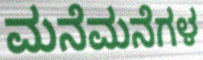
ಮನೆಮನೆಗಳ